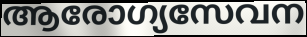
ആരോഗ്യസേവന